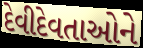
દેવીદેવતાઓને